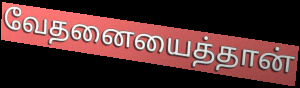
வேதனையைத்தான்